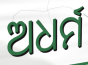
ଅଧର୍ମ